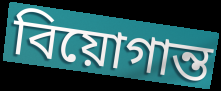
বিয়োগান্ত